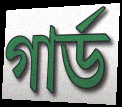
গার্ড